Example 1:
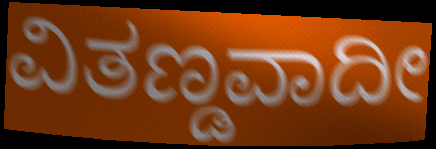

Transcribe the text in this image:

ವಿತಣ್ಡವಾದೀ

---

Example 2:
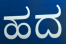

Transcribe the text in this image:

ಹದ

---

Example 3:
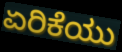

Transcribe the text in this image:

ಏರಿಕೆಯು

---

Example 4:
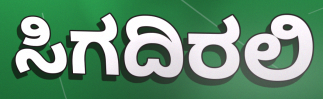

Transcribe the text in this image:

ಸಿಗದಿರಲಿ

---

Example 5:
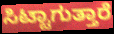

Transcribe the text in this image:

ಸಿಟ್ಟಾಗುತ್ತಾರೆ